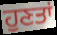
ਹੁਣਤਾਂ